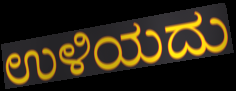
ಉಳಿಯದು